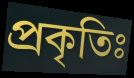
প্রকৃতিঃ